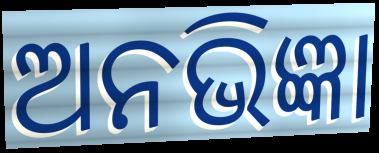
ଅନଭିଜ୍ଞା